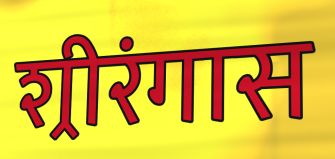
श्रीरंगास